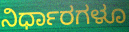
ನಿರ್ಧಾರಗಳೂ